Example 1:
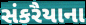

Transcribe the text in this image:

સંકરૈયાના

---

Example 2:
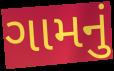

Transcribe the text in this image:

ગામનું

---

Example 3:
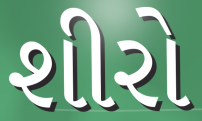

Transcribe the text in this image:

શીરો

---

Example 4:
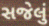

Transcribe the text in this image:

સજેલું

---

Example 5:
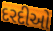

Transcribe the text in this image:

દરદીઓ